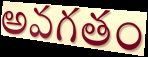
అవగతం